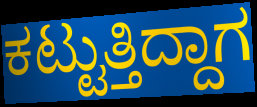
ಕಟ್ಟುತ್ತಿದ್ದಾಗ